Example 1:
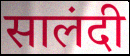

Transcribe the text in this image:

सालंदी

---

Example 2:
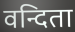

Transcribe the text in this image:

वन्दिता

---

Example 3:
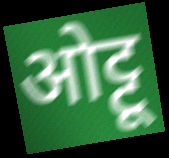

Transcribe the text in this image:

ओट्टू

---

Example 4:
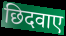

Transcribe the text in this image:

छिदवाए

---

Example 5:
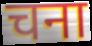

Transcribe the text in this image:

चना